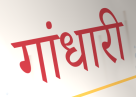
गांधारी